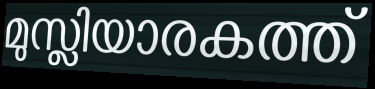
മുസ്ലിയാരകത്ത്